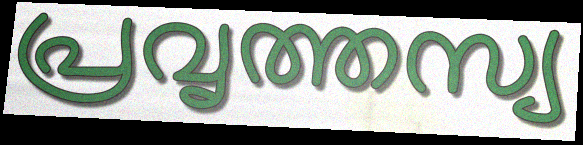
പ്രവൃത്തസ്യ